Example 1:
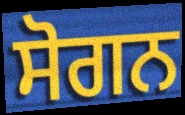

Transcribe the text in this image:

ਸੋਗਨ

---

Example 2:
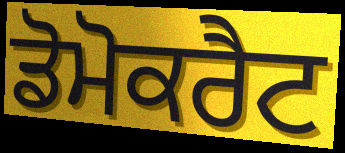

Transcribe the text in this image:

ਡੋਮੋਕਰੈਟ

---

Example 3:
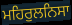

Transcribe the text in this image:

ਮਹਿਰੁਲਨਿਸਾ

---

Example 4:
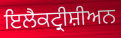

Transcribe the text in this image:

ਇਲੈਕਟ੍ਰੀਸ਼ੀਅਨ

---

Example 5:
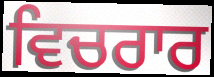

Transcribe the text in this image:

ਵਿਚਰਾਰ